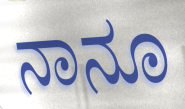
ನಾನೂ